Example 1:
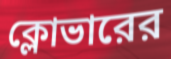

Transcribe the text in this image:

ক্লোভারের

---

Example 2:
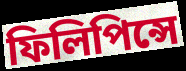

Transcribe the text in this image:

ফিলিপিন্সে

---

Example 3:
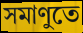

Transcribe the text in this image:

সমাণুতে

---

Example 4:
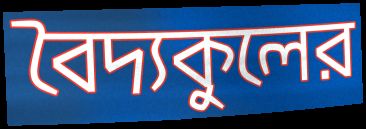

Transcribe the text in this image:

বৈদ্যকুলের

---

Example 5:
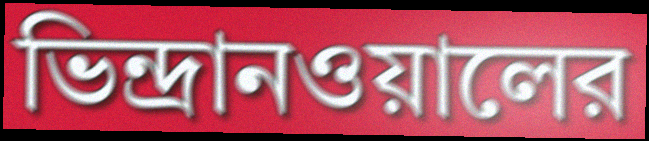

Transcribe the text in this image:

ভিন্দ্রানওয়ালের